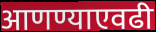
आणण्याएवढी